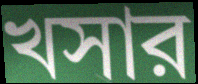
খসার